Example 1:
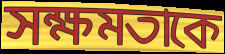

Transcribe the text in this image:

সক্ষমতাকে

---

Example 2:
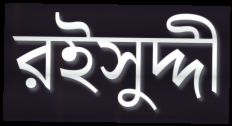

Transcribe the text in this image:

রইসুদ্দী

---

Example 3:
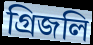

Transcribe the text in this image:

গ্রিজলি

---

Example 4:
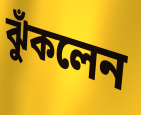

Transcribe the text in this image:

ঝুঁকলেন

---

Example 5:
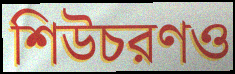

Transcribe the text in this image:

শিউচরণও